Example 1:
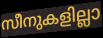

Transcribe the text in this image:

സീനുകളില്ലാ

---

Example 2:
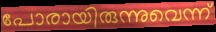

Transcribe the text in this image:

പോരായിരുന്നുവെന്ന്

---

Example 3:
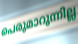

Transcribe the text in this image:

പെരുമാറുന്നില്ല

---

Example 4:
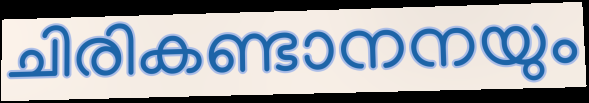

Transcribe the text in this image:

ചിരികണ്ടാനനയും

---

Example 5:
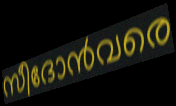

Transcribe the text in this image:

സീദോൻവരെ